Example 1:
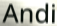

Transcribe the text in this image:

Andi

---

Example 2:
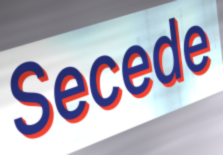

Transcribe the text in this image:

Secede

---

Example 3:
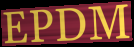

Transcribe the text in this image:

EPDM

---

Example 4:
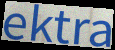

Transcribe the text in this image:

ektra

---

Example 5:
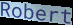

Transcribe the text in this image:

Robert